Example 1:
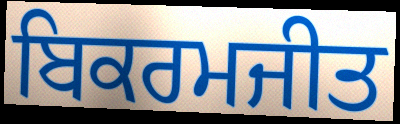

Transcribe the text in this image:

ਬਿਕਰਮਜੀਤ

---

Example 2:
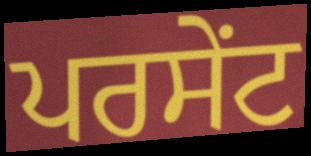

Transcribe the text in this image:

ਪਰਸੇੰਟ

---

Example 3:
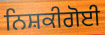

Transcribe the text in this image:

ਨਿਸ਼ਕੀਗੋਈ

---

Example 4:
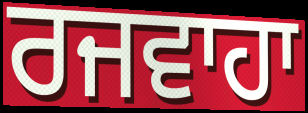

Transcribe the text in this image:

ਰਜਵਾਹਾ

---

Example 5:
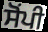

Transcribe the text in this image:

ਸੋੰਪੀ